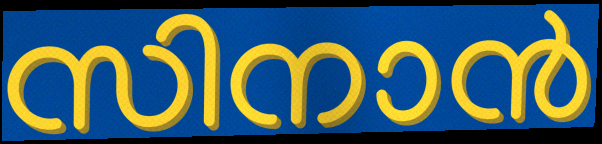
സിനാൻ